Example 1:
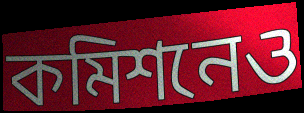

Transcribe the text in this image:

কমিশনেও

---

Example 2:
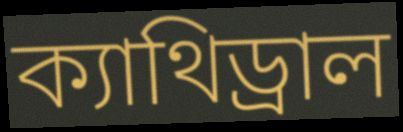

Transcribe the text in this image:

ক্যাথিড্রাল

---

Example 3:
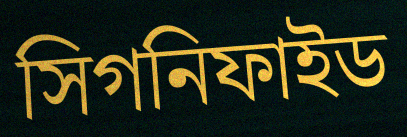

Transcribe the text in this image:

সিগনিফাইড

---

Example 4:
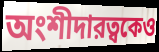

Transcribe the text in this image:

অংশীদারত্বকেও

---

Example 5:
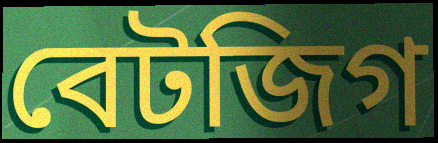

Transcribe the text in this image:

বেটজিগ